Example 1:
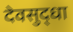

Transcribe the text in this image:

देवसुद्धा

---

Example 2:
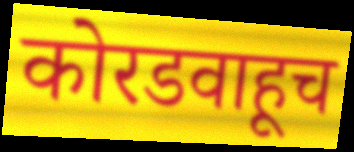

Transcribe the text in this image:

कोरडवाहूच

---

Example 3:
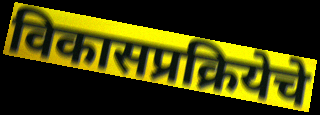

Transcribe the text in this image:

विकासप्रक्रियेचे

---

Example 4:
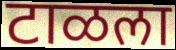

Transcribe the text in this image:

टाळला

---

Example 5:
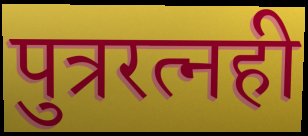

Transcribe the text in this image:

पुत्ररत्नही